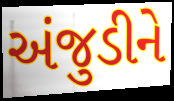
અંજુડીને